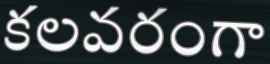
కలవరంగా